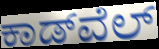
ಕಾಡ್‌ವೆಲ್